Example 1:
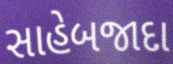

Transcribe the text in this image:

સાહેબજાદા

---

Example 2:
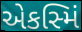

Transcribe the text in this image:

એકસ્મિં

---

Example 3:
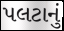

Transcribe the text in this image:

પલટાનું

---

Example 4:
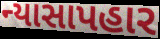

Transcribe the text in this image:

ન્યાસાપહાર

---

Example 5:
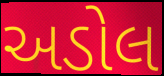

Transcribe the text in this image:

અડોલ